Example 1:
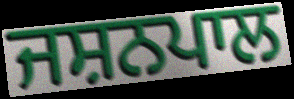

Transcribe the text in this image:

ਜਸ਼ਨਪਾਲ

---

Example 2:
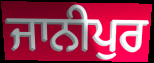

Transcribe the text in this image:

ਜਾਨੀਪੁਰ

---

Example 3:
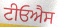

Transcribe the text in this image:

ਟੀਓਐਸ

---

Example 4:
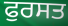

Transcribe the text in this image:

ਫੁਰਸਤ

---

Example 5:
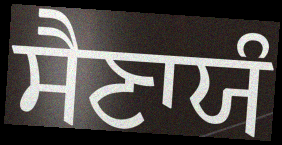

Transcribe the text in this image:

ਸੈਣਾਯੰ